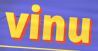
vinu